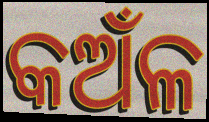
କଅଁଳ